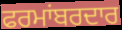
ਫਰਮਾਂਬਰਦਾਰ